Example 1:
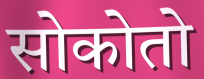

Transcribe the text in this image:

सोकोतो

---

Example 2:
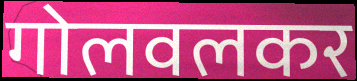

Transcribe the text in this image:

गोलवलकर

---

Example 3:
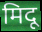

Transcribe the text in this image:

मिदू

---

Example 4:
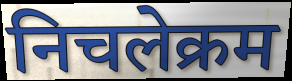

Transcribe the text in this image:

निचलेक्रम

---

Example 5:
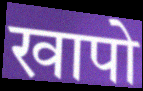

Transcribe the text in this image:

खापो